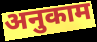
अनुकाम